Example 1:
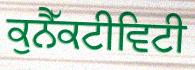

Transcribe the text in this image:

ਕੁਨੈੱਕਟੀਵਿਟੀ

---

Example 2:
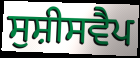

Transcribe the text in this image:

ਸੁਸ਼ੀਸਵੈਪ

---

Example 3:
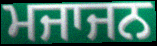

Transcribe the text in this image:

ਮਜਾਜਨ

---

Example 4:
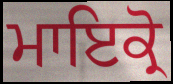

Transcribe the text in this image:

ਮਾਇਕ੍ਰੋ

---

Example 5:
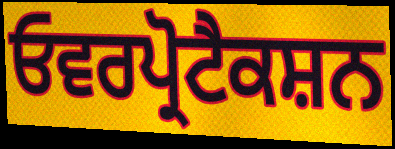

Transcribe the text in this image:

ਓਵਰਪ੍ਰੋਟੈਕਸ਼ਨ